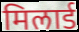
मिलार्ड